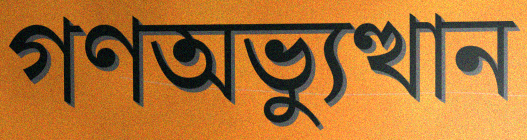
গণঅভ্যুত্থান